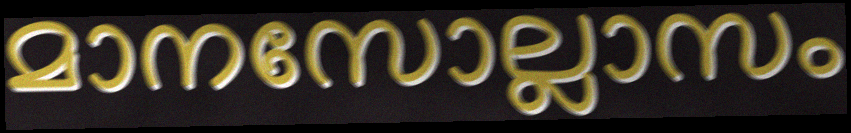
മാനസോല്ലാസം